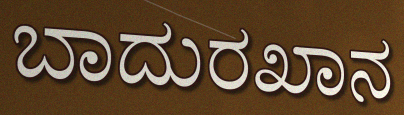
ಬಾದುರಖಾನ